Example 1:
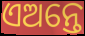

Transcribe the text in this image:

ଏଅନ୍ତେ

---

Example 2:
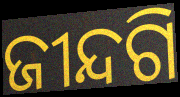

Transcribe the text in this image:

ଜୀନ୍ଦଗି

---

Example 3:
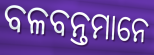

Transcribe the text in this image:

ବଳବନ୍ତମାନେ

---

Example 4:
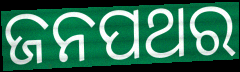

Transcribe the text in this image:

ଜନପଥର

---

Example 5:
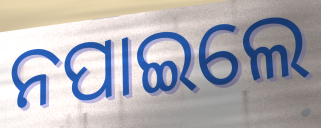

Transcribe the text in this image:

ନପାଇଲେ